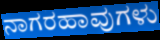
ನಾಗರಹಾವುಗಳು